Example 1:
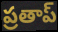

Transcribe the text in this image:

ప్రతాప్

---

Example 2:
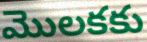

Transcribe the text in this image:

మొలకకు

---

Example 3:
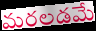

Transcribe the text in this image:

మరలడమే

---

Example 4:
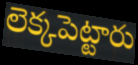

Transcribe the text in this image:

లెక్కపెట్టారు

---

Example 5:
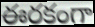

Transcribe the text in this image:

ఈరకంగా